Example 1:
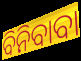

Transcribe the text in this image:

ବିନିବାବା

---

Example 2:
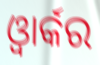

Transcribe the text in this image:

ଓ୍ବାର୍କର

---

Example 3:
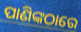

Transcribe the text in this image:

ପାଣିଙ୍କଠାରେ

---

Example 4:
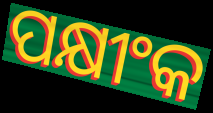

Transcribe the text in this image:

ପକ୍ଷୀଂକ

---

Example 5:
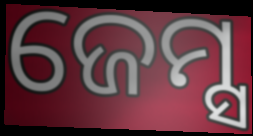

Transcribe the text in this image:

ଜେମ୍ସ